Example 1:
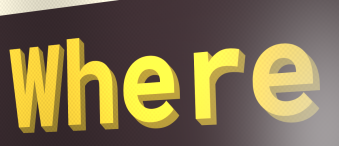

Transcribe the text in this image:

Where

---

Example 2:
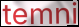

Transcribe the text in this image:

temni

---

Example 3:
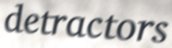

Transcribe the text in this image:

detractors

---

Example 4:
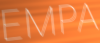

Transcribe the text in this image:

EMPA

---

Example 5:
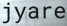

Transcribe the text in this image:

jyare